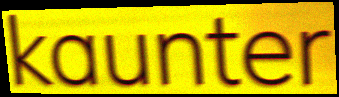
kaunter